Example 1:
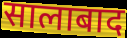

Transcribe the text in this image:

सालाबाद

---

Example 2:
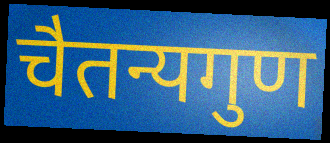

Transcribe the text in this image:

चैतन्यगुण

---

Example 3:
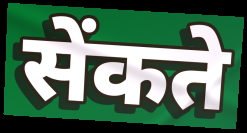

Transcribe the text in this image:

सेंकते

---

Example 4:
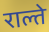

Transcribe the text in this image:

राल्ते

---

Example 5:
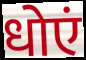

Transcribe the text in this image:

धोएं